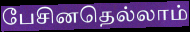
பேசினதெல்லாம்